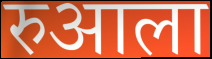
रुआला